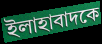
ইলাহাবাদকে